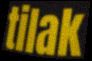
tilak